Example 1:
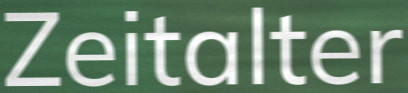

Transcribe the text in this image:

Zeitalter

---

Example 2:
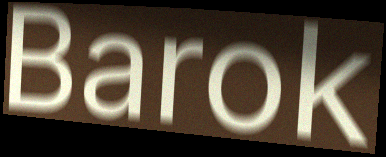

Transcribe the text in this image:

Barok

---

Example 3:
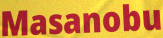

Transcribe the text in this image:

Masanobu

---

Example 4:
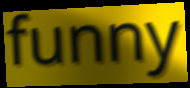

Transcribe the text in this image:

funny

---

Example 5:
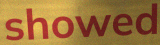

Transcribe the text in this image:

showed